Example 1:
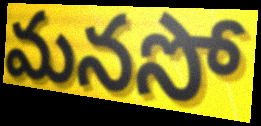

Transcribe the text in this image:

మనసో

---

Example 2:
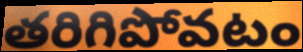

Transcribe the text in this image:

తరిగిపోవటం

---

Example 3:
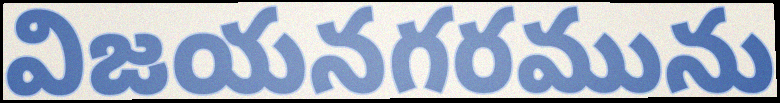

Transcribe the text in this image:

విజయనగరమును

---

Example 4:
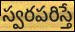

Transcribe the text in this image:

స్వరపరిస్తే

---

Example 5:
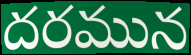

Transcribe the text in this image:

దరమున